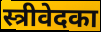
स्त्रीवेदका